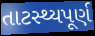
તાટસ્થ્યપૂર્ણ